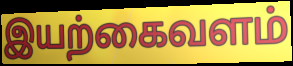
இயற்கைவளம்